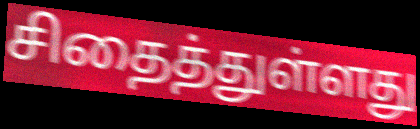
சிதைத்துள்ளது